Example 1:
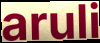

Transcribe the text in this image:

aruli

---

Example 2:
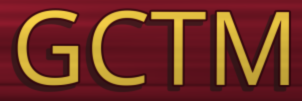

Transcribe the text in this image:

GCTM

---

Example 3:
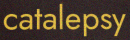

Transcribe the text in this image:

catalepsy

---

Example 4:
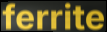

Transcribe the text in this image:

ferrite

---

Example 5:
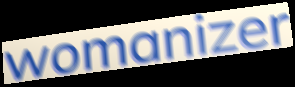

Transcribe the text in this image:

womanizer